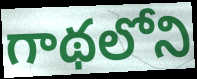
గాథలోని